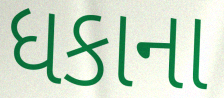
ધકાના